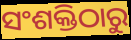
ସଂଶକ୍ତିଠାରୁ